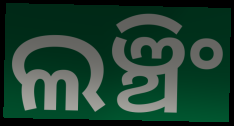
ଲଞ୍ଚିଂ